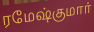
ரமேஷ்குமார்